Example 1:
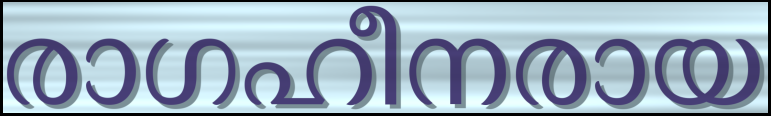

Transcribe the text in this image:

രാഗഹീനരായ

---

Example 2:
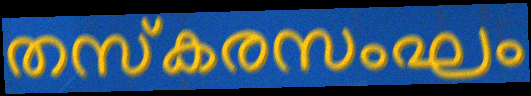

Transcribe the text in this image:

തസ്കരസംഘം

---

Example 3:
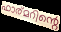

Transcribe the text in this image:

ഫാര്മറിന്റെ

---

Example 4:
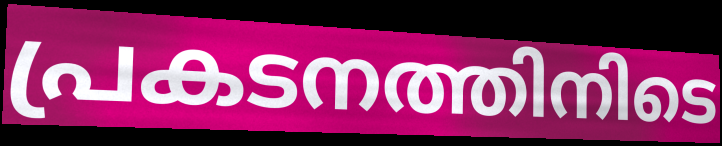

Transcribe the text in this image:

പ്രകടനത്തിനിടെ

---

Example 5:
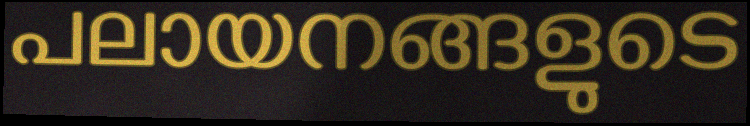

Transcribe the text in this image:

പലായനങ്ങളുടെ